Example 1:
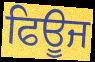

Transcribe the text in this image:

ਫਿਊਜ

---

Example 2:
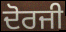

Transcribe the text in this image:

ਦੋਰਜੀ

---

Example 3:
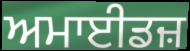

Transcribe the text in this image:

ਅਮਾਈਡਜ਼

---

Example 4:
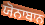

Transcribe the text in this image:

ਯੋਨਾਬਾਨ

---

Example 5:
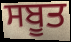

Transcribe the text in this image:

ਸਬੂਤ